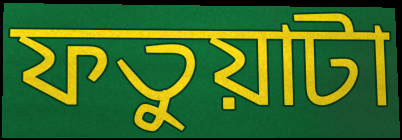
ফতুয়াটা